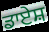
ਡਾਏਸ਼